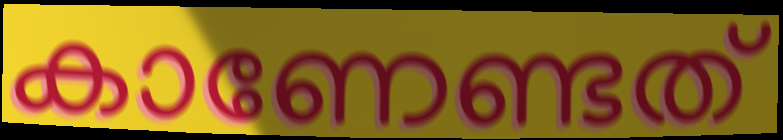
കാണേണ്ടത്